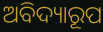
ଅବିଦ୍ୟାରୂପ